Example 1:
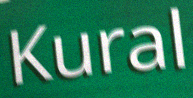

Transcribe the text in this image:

Kural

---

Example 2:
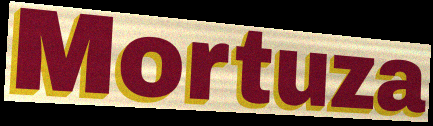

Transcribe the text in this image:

Mortuza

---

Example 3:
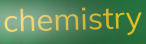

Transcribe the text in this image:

chemistry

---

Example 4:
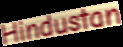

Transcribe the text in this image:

Hindustan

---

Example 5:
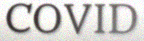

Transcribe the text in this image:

COVID